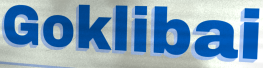
Goklibai